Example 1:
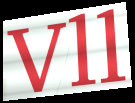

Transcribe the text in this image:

Vll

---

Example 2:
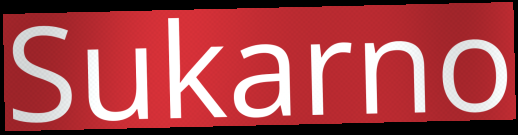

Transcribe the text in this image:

Sukarno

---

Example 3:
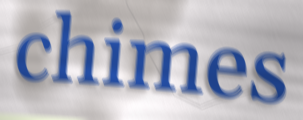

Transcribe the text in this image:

chimes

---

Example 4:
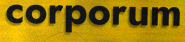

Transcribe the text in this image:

corporum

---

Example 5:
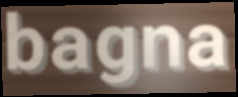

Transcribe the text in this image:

bagna